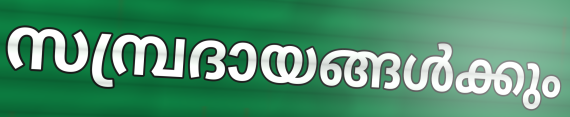
സമ്പ്രദായങ്ങൾക്കും